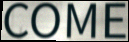
COME